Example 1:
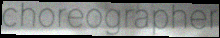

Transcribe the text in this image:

choreographer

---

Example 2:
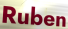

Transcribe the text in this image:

Ruben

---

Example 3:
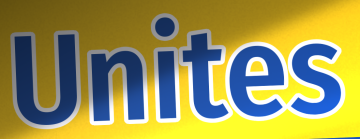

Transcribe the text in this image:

Unites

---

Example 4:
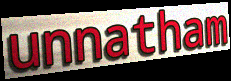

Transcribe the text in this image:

unnatham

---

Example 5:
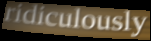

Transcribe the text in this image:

ridiculously